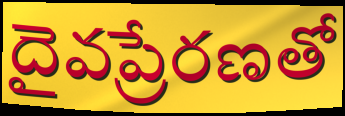
దైవప్రేరణతో